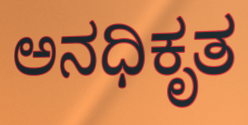
ಅನಧಿಕೃತ